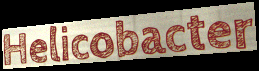
Helicobacter